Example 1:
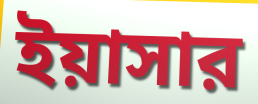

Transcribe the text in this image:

ইয়াসার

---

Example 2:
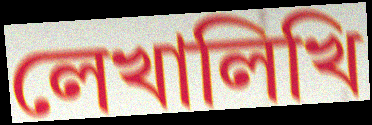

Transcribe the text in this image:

লেখালিখি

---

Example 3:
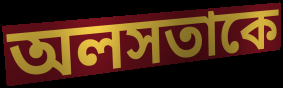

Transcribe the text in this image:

অলসতাকে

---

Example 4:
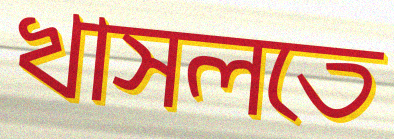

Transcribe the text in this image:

খাসলতে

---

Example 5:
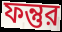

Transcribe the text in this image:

ফন্তুর